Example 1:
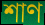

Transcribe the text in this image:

শাণ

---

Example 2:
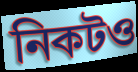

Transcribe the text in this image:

নিকটও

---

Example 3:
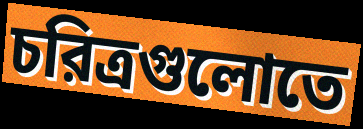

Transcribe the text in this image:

চরিত্রগুলোতে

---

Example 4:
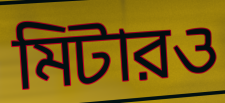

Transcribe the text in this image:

মিটারও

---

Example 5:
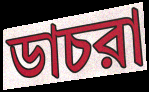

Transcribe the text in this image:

ডাচরা